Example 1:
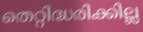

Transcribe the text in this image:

തെറ്റിദ്ധരിക്കില്ല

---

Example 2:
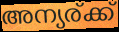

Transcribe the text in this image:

അന്യര്ക്ക്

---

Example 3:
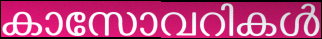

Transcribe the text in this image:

കാസോവറികൾ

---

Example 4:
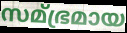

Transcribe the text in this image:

സമ്ഭ്രമായ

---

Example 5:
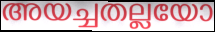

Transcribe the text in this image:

അയച്ചതല്ലയോ